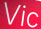
Vic